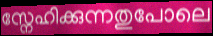
സ്നേഹിക്കുന്നതുപോലെ